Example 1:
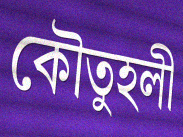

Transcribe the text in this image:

কৌতুহলী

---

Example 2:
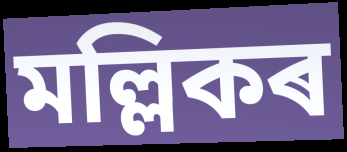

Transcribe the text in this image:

মল্লিকৰ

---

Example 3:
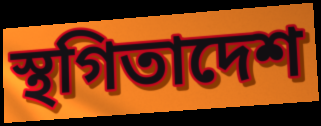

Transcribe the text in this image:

স্থগিতাদেশ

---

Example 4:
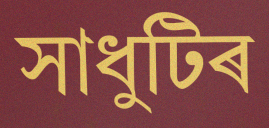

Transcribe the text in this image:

সাধুটিৰ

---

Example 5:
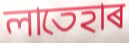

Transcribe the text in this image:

লাতেহাৰ